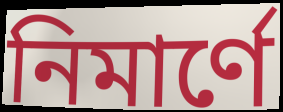
নিমার্ণে